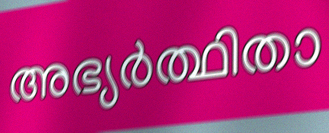
അഭ്യർത്ഥിതാ